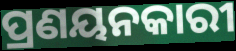
ପ୍ରଣୟନକାରୀ